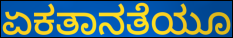
ಏಕತಾನತೆಯೂ